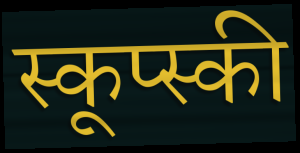
स्कूप्स्की